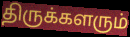
திருக்களரும்